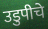
उडुपीचे